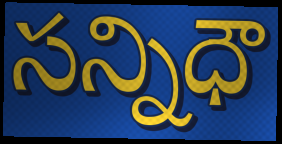
సన్నిధౌ